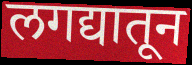
लगद्यातून